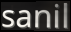
sanil